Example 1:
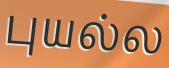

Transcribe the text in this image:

புயல்ல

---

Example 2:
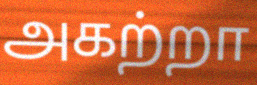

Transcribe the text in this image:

அகற்றா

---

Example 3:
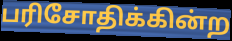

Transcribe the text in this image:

பரிசோதிக்கின்ற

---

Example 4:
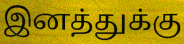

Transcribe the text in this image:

இனத்துக்கு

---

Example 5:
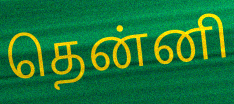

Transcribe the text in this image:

தென்னி